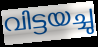
വിട്ടയച്ചു